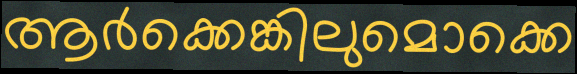
ആർക്കെങ്കിലുമൊക്കെ